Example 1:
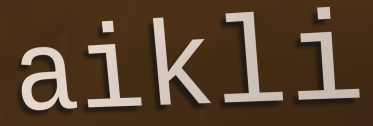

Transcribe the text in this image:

aikli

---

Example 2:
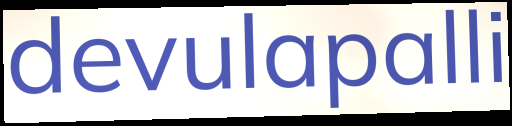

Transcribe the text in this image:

devulapalli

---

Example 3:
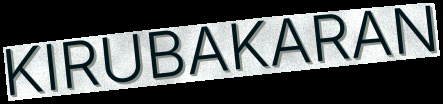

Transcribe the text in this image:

KIRUBAKARAN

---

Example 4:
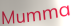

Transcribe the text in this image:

Mumma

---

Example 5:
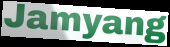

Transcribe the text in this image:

Jamyang